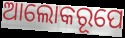
ଆଲୋକରୂପେ